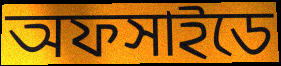
অফসাইডে